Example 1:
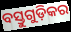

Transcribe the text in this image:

ବସ୍ତୁଗୁଡ଼ିକର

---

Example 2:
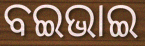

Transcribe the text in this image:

ବଇଭାଇ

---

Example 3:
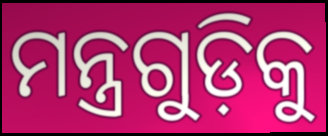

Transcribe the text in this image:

ମନ୍ତ୍ରଗୁଡ଼ିକୁ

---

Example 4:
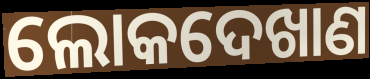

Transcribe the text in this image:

ଲୋକଦେଖାଣ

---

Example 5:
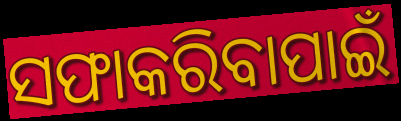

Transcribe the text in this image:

ସଫାକରିବାପାଇଁ